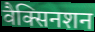
वैक्सिनशन